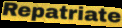
Repatriate